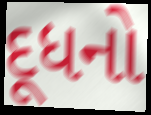
દૂધનો